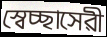
স্বেচ্ছাসেৱী